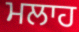
ਮਲਾਹ